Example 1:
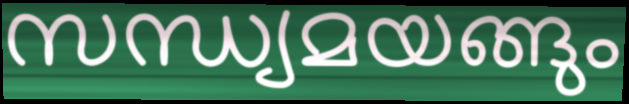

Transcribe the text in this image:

സന്ധ്യമയങ്ങും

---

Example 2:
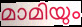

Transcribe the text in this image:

മാമിയും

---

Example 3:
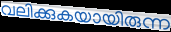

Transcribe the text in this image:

വലിക്കുകയായിരുന്ന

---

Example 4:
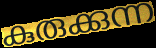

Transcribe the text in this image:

കുരുക്കുന്ന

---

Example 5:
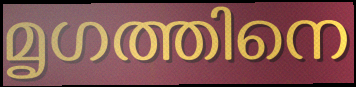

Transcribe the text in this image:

മൃഗത്തിനെ